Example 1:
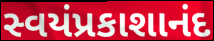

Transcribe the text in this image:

સ્વયંપ્રકાશાનંદ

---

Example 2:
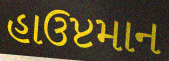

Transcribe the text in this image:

હાઉપ્ટમાન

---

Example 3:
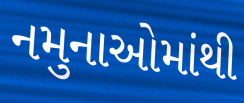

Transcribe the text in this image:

નમુનાઓમાંથી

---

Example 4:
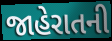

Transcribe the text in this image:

જાહેરાતની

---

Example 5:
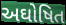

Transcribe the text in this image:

અઘોષિત